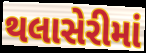
થલાસેરીમાં